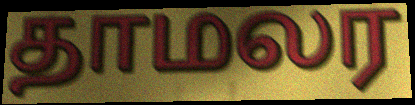
தாமலர